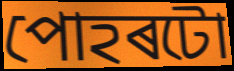
পোহৰটো